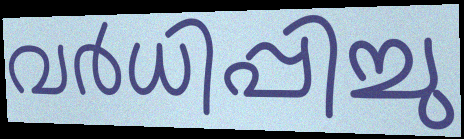
വർധിപ്പിച്ചു